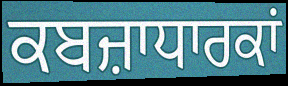
ਕਬਜ਼ਾਧਾਰਕਾਂ